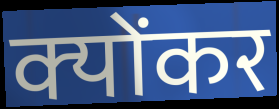
क्योंकर